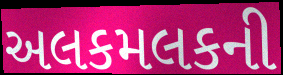
અલકમલકની